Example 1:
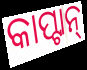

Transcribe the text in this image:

କାପ୍ଟାନ୍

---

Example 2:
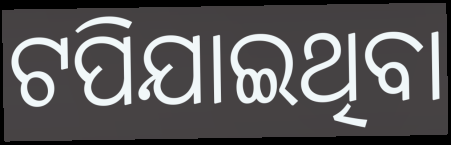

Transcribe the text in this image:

ଟପିଯାଇଥିବା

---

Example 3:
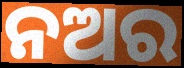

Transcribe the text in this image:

ନଅର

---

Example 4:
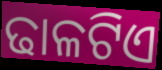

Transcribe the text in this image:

ଢାଳଟିଏ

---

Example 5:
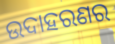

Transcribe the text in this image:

ଉଦାହରଣର